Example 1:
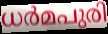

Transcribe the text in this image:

ധർമപുരി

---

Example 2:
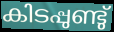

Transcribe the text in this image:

കിടപ്പുണ്ടു്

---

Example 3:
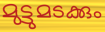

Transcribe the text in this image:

മുട്ടുമടക്കും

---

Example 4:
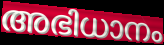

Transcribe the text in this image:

അഭിധാനം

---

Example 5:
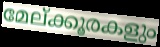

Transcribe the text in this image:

മേല്ക്കൂരകളും